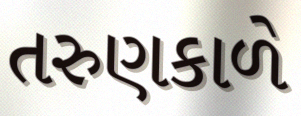
તરુણકાળે